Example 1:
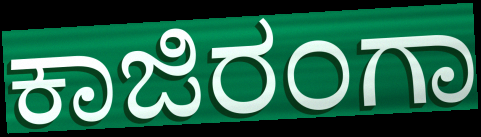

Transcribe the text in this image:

ಕಾಜಿರಂಗಾ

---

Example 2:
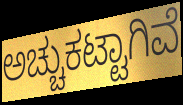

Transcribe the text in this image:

ಅಚ್ಚುಕಟ್ಟಾಗಿವೆ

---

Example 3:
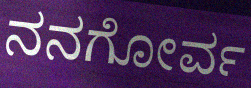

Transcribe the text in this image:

ನನಗೋರ್ವ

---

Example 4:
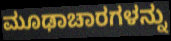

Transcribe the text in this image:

ಮೂಢಾಚಾರಗಳನ್ನು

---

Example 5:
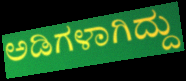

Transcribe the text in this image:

ಅಡಿಗಳಾಗಿದ್ದು